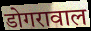
डोगरावाल